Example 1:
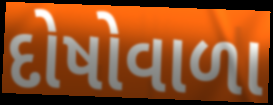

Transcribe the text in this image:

દોષોવાળા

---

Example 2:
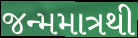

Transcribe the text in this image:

જન્મમાત્રથી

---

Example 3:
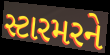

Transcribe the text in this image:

સ્ટારમરને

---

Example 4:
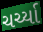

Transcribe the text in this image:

ચર્ચ્યા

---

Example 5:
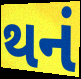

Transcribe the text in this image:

થનં